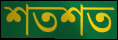
শতশত